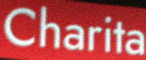
Charita